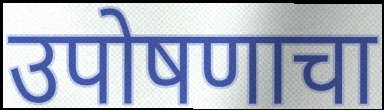
उपोषणाचा